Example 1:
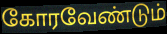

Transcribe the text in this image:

கோரவேண்டும்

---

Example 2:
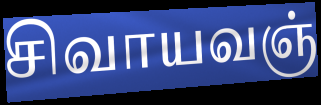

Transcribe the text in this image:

சிவாயவஞ்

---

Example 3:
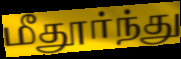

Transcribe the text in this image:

மீதூர்ந்து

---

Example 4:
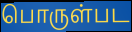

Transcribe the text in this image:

பொருள்பட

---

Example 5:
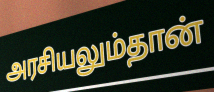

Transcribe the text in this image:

அரசியலும்தான்